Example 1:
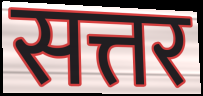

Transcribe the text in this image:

सत्तर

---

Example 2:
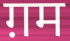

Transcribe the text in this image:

ग़म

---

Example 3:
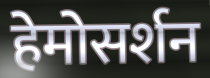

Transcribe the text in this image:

हेमोसर्शन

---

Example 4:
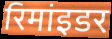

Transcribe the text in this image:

रिमांइडर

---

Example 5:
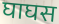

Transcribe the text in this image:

घाघस